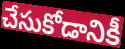
చేసుకోడానికీ